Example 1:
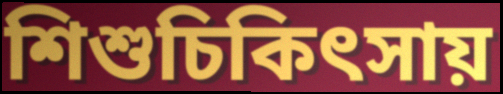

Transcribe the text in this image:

শিশুচিকিৎসায়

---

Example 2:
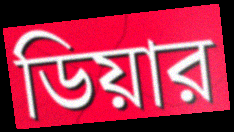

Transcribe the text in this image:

ডিয়ার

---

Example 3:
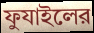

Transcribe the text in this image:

ফুযাইলের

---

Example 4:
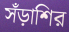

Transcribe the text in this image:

সঁড়াশির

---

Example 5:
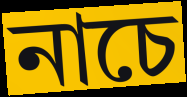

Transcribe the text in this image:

নাচে